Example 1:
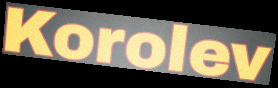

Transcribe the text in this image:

Korolev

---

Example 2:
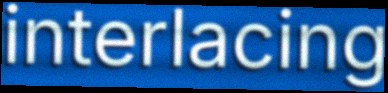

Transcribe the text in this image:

interlacing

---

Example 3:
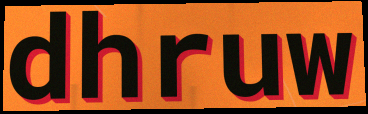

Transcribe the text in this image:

dhruw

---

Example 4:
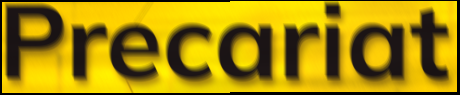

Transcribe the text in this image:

Precariat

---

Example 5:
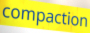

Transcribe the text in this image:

compaction